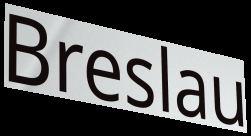
Breslau